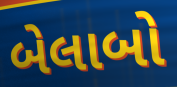
બેલાબો